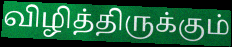
விழித்திருக்கும்